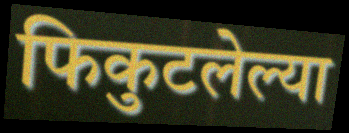
फिकुटलेल्या